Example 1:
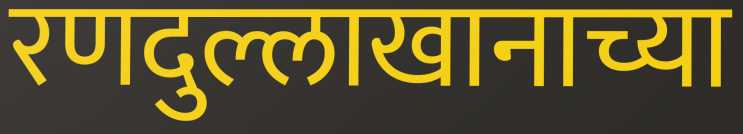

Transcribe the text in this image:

रणदुल्लाखानाच्या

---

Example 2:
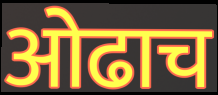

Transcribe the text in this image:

ओढाच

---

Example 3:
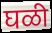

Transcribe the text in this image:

घळी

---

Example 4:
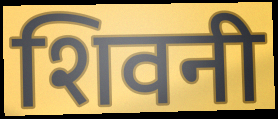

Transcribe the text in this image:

शिवनी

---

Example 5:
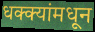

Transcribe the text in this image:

धक्क्यांमधून